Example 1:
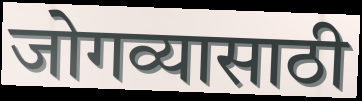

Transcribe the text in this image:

जोगव्यासाठी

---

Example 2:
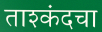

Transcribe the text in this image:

ताश्कंदचा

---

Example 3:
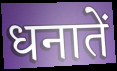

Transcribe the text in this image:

धनातें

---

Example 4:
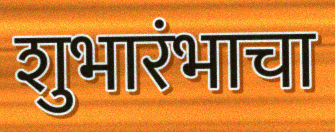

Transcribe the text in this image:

शुभारंभाचा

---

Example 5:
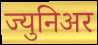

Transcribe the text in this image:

ज्युनिअर